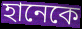
হানেকে